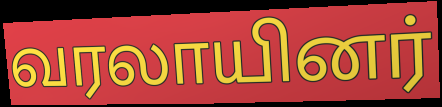
வரலாயினர்